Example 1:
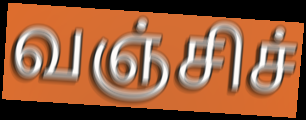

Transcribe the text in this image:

வஞ்சிச்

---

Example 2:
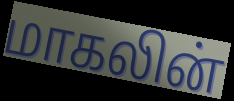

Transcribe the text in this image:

மாகலின்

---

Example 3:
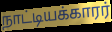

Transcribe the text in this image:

நாட்டியக்காரர்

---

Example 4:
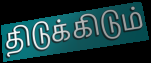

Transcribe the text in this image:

திடுக்கிடும்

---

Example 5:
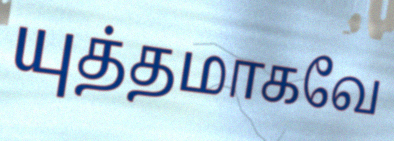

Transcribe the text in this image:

யுத்தமாகவே